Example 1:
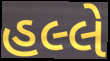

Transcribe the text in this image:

હલ્લે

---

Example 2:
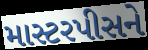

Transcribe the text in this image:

માસ્ટરપીસને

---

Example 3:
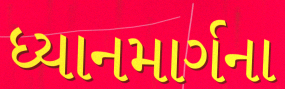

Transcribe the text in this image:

ધ્યાનમાર્ગના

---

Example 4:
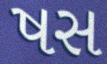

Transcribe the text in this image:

ષસ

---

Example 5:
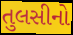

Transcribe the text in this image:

તુલસીનો